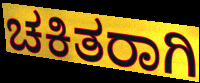
ಚಕಿತರಾಗಿ